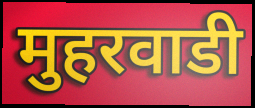
मुहरवाडी